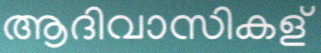
ആദിവാസികള്